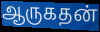
ஆருகதன்